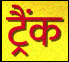
ट्रैंक